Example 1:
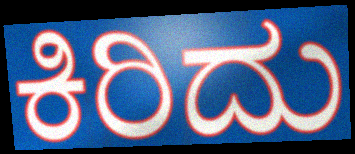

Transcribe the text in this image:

ಕಿರಿದು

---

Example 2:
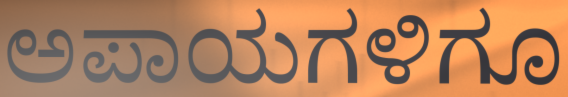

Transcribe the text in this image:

ಅಪಾಯಗಳಿಗೂ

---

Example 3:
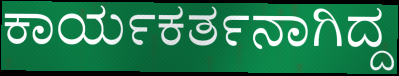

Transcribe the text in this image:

ಕಾರ್ಯಕರ್ತನಾಗಿದ್ದ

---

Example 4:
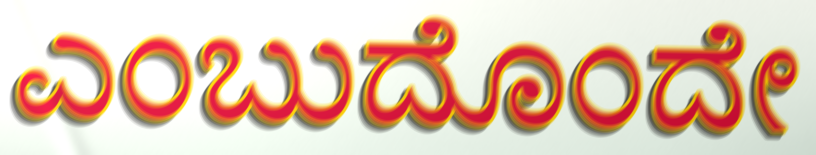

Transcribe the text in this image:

ಎಂಬುದೊಂದೇ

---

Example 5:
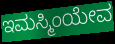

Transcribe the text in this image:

ಇಮಸ್ಮಿಂಯೇವ